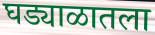
घड्याळातला